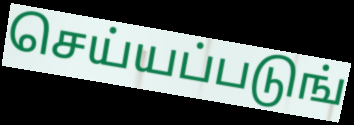
செய்யப்படுங்